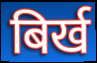
बिर्ख